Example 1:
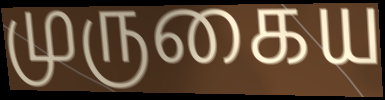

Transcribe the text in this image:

முருகைய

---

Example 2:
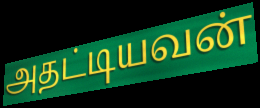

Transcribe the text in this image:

அதட்டியவன்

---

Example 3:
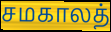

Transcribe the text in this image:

சமகாலத்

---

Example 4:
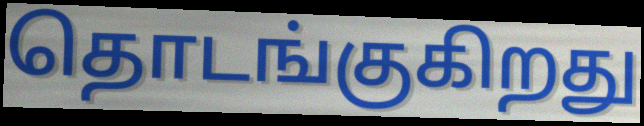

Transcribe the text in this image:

தொடங்குகிறது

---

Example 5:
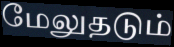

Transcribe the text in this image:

மேலுதடும்